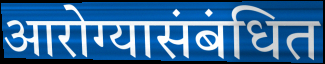
आरोग्यासंबंधित